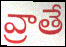
వ్రాతే